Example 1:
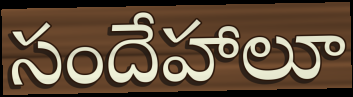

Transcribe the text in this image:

సందేహాలూ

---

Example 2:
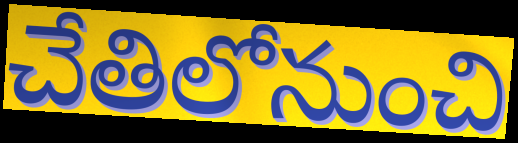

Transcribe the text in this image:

చేతిలోనుంచి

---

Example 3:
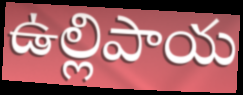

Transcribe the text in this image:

ఉల్లిపాయ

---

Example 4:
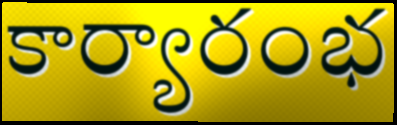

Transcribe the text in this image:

కార్యారంభ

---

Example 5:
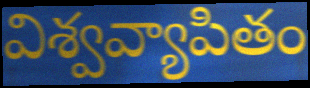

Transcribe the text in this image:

విశ్వవ్యాపితం